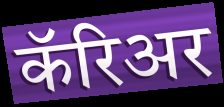
कॅरिअर